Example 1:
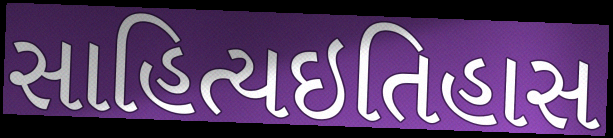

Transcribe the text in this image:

સાહિત્યઇતિહાસ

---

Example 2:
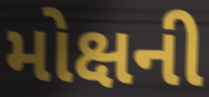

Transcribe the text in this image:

મોક્ષની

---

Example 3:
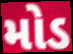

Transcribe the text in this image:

મોડ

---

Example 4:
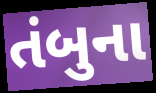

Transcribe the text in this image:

તંબુના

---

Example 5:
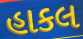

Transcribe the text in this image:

હાકલ